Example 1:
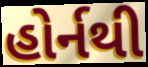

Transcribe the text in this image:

હોર્નથી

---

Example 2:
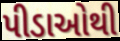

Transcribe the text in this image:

પીડાઓથી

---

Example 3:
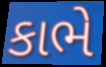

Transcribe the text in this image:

કાભે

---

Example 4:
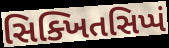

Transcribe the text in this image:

સિક્ખિતસિપ્પં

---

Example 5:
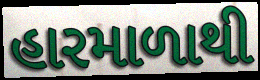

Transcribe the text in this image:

હારમાળાથી